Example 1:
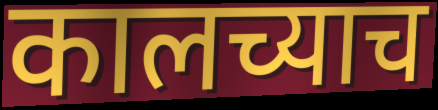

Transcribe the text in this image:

कालच्याच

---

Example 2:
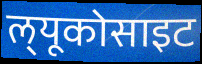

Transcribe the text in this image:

ल्यूकोसाइट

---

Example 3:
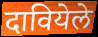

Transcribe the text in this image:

दावियेले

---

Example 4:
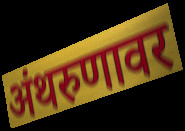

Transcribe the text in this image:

अंथरुणावर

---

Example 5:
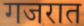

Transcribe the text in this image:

गजरात